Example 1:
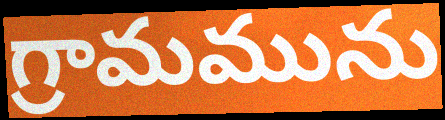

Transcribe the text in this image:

గ్రామమును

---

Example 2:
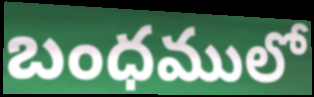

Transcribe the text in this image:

బంధములో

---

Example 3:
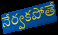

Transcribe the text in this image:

నేర్వకపోతే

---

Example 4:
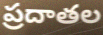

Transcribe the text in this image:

ప్రదాతల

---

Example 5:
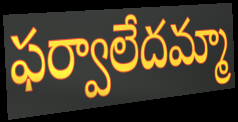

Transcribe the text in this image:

ఫర్వాలేదమ్మా